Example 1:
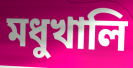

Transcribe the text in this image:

মধুখালি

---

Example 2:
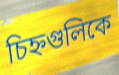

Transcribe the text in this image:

চিহ্নগুলিকে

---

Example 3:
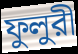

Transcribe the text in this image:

ফুলুরী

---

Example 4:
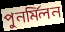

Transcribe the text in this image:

পুনর্মিলন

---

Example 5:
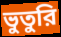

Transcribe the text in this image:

ভুতুরি